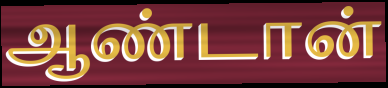
ஆண்டான்